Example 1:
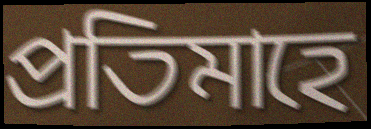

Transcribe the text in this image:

প্ৰতিমাহে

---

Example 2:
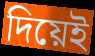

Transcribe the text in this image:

দিয়েই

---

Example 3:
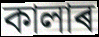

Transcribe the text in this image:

কালাৰ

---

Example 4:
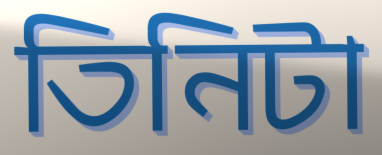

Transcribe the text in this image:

তিনিটা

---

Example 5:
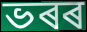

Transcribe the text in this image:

ভৰৰ